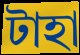
টাহা